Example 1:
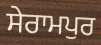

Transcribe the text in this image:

ਸੇਰਾਮਪੁਰ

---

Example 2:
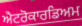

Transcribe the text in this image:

ਐਟਰੋਕਾਰਡਿਅਮ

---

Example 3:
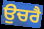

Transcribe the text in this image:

ਉਚਰੈ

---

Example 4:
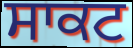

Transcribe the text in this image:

ਸਾਕਟ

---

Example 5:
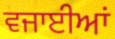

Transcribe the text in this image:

ਵਜਾਈਆਂ